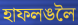
হাফলঙলৈ